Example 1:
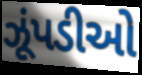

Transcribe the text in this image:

ઝૂંપડીઓ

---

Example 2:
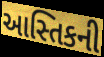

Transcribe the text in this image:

આસ્તિકની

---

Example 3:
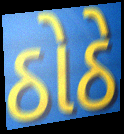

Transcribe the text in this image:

ઠોઠે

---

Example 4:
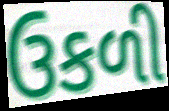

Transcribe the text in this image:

ઉકળી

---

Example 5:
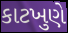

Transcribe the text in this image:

કાટખુણે